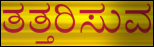
ತತ್ತರಿಸುವ